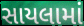
સાયલામાં